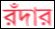
রঁদার